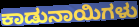
ಕಾಡುನಾಯಿಗಳು